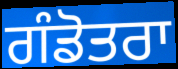
ਗੰਡੋਤਰਾ